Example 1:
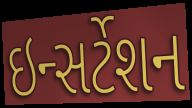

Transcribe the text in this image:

ઇન્સર્ટેશન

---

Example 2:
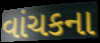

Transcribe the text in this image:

વાંચકના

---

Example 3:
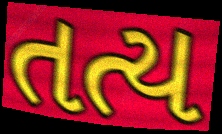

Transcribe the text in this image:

તત્ય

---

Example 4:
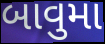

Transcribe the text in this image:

બાવુમા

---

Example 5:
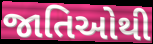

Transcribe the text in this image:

જાતિઓથી